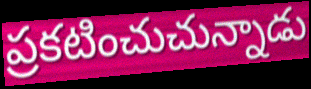
ప్రకటించుచున్నాడు